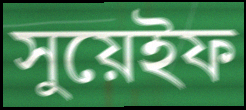
সুয়েইফ